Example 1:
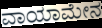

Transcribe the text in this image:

ವಾಯಾಮೇನ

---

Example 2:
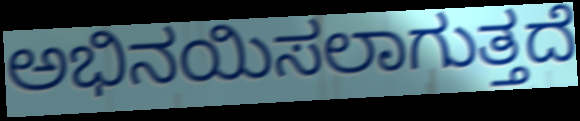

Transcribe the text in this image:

ಅಭಿನಯಿಸಲಾಗುತ್ತದೆ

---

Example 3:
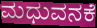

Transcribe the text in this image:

ಮಧುವನಕೆ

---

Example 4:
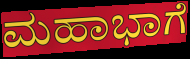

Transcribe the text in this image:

ಮಹಾಭಾಗೆ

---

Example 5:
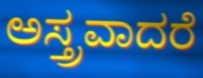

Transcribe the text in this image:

ಅಸ್ತ್ರವಾದರೆ